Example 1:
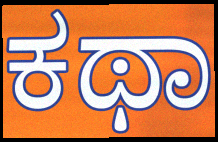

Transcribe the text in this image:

ಕಥಾ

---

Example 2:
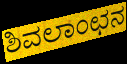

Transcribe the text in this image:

ಶಿವಲಾಂಛನ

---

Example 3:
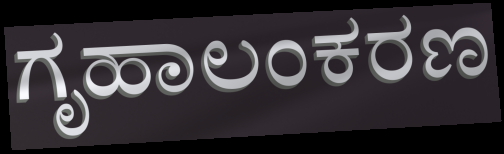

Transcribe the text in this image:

ಗೃಹಾಲಂಕರಣ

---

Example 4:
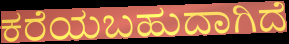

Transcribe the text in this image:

ಕರೆಯಬಹುದಾಗಿದೆ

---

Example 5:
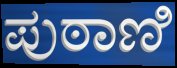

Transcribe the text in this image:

ಪುಠಾಣಿ